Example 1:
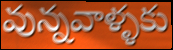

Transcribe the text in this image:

వున్నవాళ్ళకు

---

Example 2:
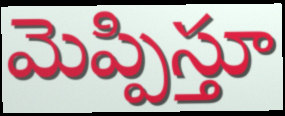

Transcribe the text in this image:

మెప్పిస్తూ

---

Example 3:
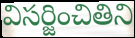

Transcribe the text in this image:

విసర్జించితిని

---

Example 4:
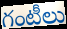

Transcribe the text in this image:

గంటీలు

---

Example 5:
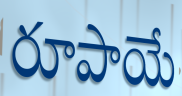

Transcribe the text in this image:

రూపాయే